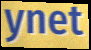
ynet